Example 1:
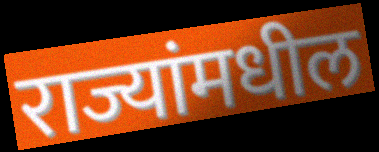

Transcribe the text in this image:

राज्यांमधील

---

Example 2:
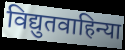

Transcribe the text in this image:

विद्युतवाहिन्या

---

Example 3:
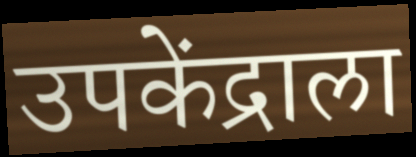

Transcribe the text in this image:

उपकेंद्राला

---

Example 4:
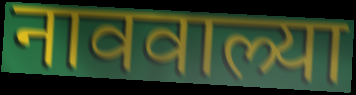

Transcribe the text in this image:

नाववाल्या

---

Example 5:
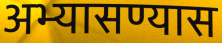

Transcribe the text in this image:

अभ्यासण्यास